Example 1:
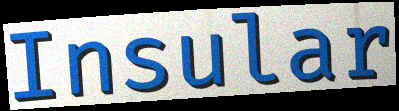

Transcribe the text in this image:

Insular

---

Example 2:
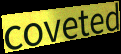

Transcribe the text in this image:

coveted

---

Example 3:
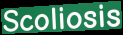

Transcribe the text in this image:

Scoliosis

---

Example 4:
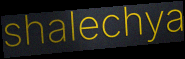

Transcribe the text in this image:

shalechya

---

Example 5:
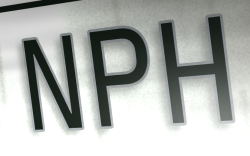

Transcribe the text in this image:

NPH